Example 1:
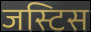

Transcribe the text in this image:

जस्टिस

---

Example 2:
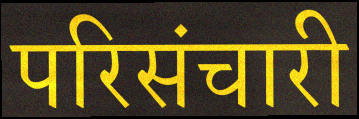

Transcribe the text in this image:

परिसंचारी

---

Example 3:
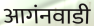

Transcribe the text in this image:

आगंनवाडी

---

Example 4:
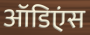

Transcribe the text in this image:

ऑडिएंस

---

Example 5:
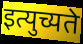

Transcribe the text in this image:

इत्युच्यते